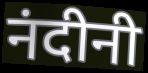
नंदीनी